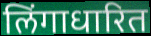
लिंगाधारित